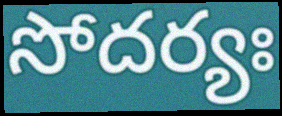
సోదర్యః